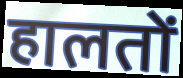
हालतों